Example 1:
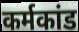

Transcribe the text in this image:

कर्मकांड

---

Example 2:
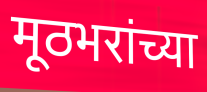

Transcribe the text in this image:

मूठभरांच्या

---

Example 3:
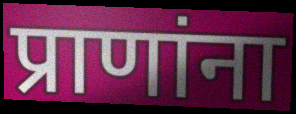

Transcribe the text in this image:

प्राणांना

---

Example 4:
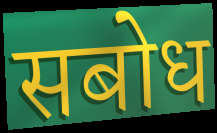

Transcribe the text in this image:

सबोध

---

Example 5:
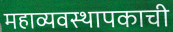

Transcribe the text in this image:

महाव्यवस्थापकाची